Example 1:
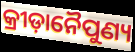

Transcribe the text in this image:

କ୍ରୀଡ଼ାନୈପୁଣ୍ୟ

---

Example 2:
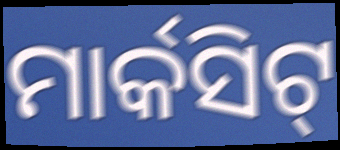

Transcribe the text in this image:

ମାର୍କସିଟ୍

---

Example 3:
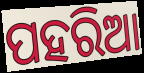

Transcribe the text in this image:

ପହରିଆ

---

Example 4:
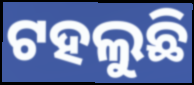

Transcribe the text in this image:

ଟହଲୁଛି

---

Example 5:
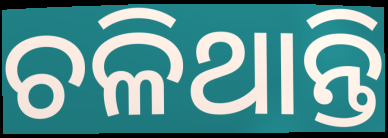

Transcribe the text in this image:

ଚଳିଥାନ୍ତି